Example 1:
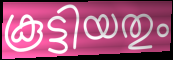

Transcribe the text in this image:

കൂട്ടിയതും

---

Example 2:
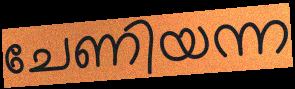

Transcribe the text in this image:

ചേണിയന്ന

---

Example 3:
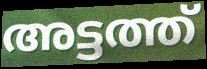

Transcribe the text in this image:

അട്ടത്ത്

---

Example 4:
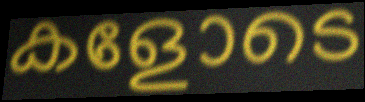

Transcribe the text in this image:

കളോടെ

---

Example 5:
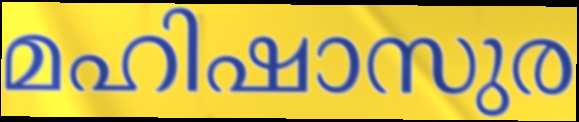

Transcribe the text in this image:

മഹിഷാസുര